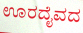
ಊರದೈವದ